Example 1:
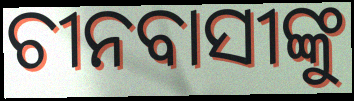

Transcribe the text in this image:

ଚୀନବାସୀଙ୍କୁ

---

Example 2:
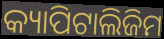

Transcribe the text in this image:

କ୍ୟାପିଟାଲିଜିମ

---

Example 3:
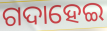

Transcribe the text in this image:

ଗଦାହେଇ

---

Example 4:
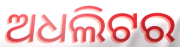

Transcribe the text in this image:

ଅଧଲିଟର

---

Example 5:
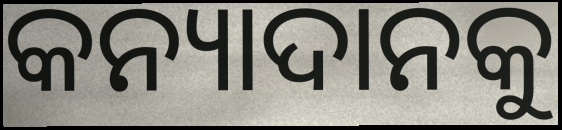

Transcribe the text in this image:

କନ୍ୟାଦାନକୁ